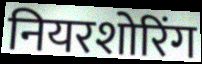
नियरशोरिंग